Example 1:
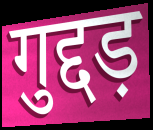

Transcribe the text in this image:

गुद्दड़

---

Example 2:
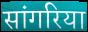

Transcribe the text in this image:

सांगरिया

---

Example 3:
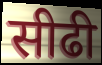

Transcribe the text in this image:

सीढी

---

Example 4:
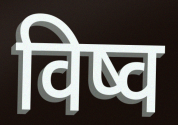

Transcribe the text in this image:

विष्व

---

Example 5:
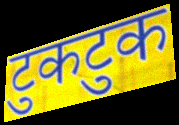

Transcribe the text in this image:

टुकटुक